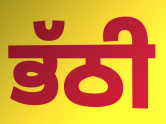
ਭੱਠੀ